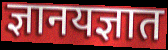
ज्ञानयज्ञात